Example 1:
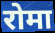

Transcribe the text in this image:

रोमा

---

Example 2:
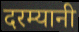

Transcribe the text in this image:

दरम्यानी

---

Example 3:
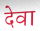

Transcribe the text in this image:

देवा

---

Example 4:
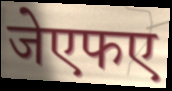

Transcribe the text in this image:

जेएफए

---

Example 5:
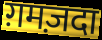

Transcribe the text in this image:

ग़मज़दा